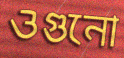
ওগুনো